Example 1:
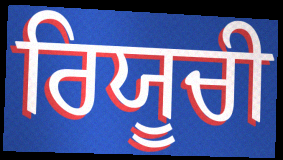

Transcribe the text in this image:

ਰਿਯੂਚੀ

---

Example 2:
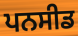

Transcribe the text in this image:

ਪਨਸੀਡ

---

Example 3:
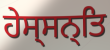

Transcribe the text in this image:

ਹੇਸ੍ਸਨ੍ਤਿ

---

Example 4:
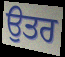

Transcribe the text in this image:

ਉੁਤਰ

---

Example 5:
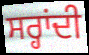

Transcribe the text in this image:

ਸਰ੍ਹਾਂਦੀ